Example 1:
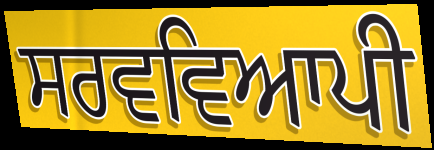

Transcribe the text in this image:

ਸਰਵਵਿਆਪੀ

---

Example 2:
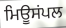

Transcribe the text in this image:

ਮਿਊਸਂਪਲ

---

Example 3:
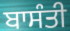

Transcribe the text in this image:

ਬਾਸੰਤੀ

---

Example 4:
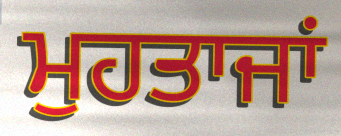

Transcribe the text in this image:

ਮੁਹਤਾਜਾਂ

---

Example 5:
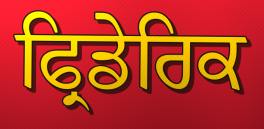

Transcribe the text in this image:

ਫ੍ਰਿਡੇਰਿਕ